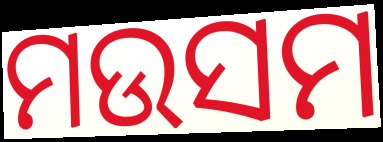
ମଉସମ